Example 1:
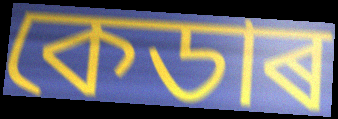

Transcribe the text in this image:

কেডাৰ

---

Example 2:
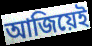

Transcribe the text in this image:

আজিয়েই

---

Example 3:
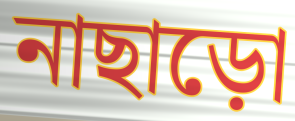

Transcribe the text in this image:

নাছাড়ো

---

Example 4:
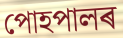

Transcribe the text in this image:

পোহপালৰ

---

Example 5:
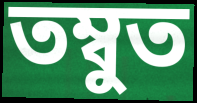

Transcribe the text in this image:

তম্বুত